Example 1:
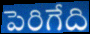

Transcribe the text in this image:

పెరిగేది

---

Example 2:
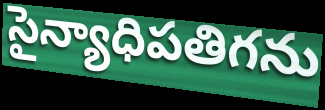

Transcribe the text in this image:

సైన్యాధిపతిగను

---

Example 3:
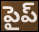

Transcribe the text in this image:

పైప్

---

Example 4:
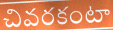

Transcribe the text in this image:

చివరకంటా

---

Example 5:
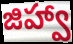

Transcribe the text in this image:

జిహ్వా